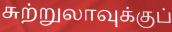
சுற்றுலாவுக்குப்